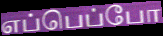
எப்பெப்போ